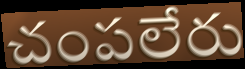
చంపలేరు